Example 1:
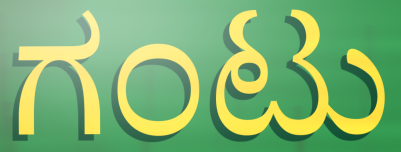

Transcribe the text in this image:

ಗಂಟು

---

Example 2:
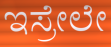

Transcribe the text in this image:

ಇಸ್ರೇಲೇ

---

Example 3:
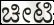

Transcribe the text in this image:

ಚೀಟಿ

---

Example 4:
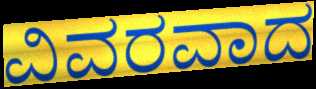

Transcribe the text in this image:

ವಿವರವಾದ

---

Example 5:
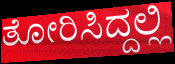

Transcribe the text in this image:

ತೋರಿಸಿದ್ದಲ್ಲಿ